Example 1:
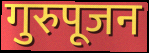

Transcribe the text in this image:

गुरुपूजन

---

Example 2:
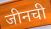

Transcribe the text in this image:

जीनची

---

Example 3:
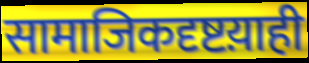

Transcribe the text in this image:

सामाजिकदृष्टय़ाही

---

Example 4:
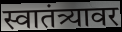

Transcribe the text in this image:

स्वातंत्र्यावर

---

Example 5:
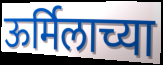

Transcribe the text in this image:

ऊर्मिलाच्या